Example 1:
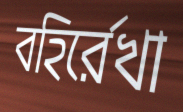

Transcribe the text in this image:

বহির্রেখা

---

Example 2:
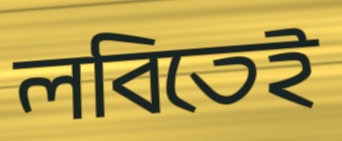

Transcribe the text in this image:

লবিতেই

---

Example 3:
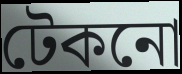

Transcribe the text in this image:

টেকনো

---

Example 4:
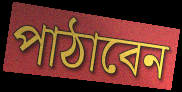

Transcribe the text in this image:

পাঠাবেন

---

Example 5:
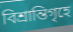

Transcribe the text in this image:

বিশ্রান্তিগৃহে